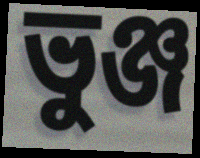
ভুঞ্জ